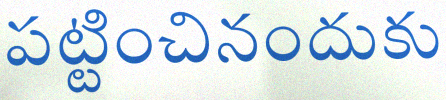
పట్టించినందుకు